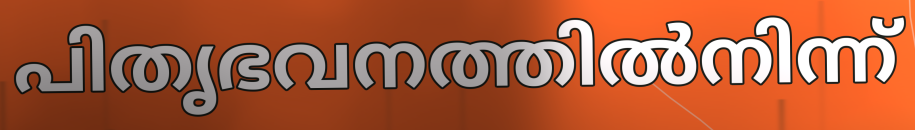
പിതൃഭവനത്തിൽനിന്ന്